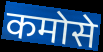
कमोसे